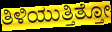
ತಿಳಿಯುತ್ತಿತ್ತೋ